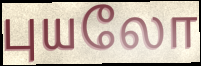
புயலோ